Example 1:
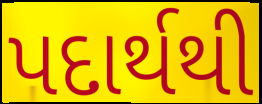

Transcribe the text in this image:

પદાર્થથી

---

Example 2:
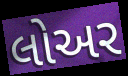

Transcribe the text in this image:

લોઅર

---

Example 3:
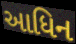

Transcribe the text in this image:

આધિન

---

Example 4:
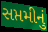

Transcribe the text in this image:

સપ્તમીનું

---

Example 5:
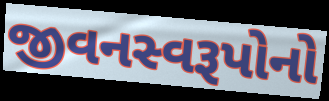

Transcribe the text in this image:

જીવનસ્વરૂપોનો